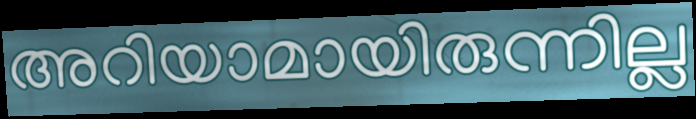
അറിയാമായിരുന്നില്ല